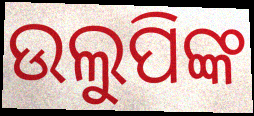
ଉଲୁପିଙ୍କ